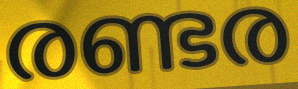
രണ്ടര